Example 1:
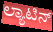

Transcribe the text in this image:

ಲ್ಯಾಟಿನ್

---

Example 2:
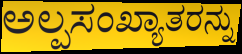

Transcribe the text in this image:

ಅಲ್ಪಸಂಖ್ಯಾತರನ್ನು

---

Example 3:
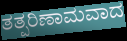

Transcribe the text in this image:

ತತ್ಪರಿಣಾಮವಾದ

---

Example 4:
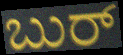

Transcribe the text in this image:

ಬುರ್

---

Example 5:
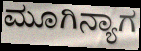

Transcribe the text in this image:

ಮೂಗಿನ್ಯಾಗ